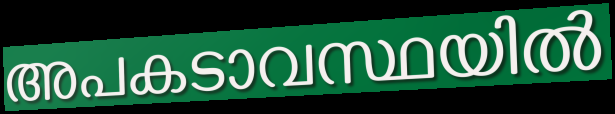
അപകടാവസ്ഥയിൽ